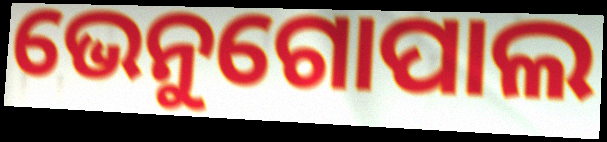
ଭେନୁଗୋପାଲ